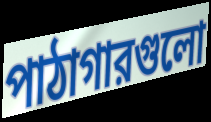
পাঠাগারগুলো